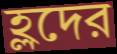
হ্লদের